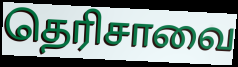
தெரிசாவை